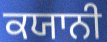
ਕਯਾਨੀ